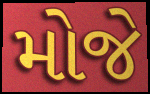
મોજે